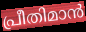
പ്രീതിമാൻ